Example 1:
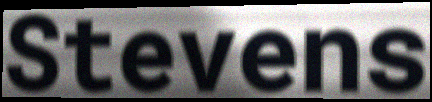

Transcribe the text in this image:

Stevens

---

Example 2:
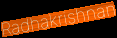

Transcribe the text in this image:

Radhakrishnan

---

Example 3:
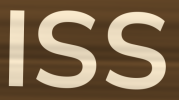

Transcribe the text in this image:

ISS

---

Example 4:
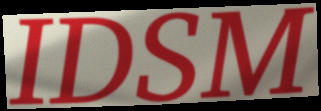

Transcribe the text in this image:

IDSM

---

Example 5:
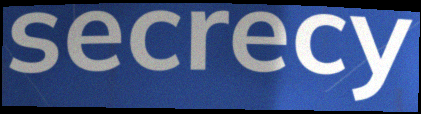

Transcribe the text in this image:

secrecy